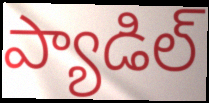
ప్యాడిల్